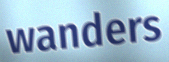
wanders